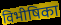
विभीषिका